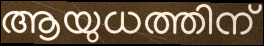
ആയുധത്തിന്